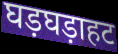
घड़घड़ाहट